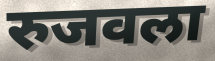
रुजवला